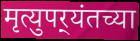
मृत्युपर्यंतच्या